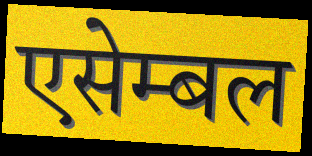
एसेम्बल